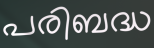
പരിബദ്ധ